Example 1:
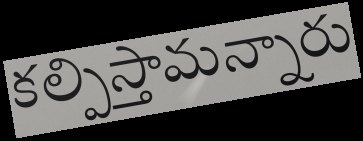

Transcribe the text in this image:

కల్పిస్తామన్నారు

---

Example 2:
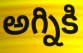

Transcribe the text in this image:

అగ్నికి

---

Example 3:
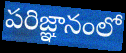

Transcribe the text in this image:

పరిజ్ఞానంలో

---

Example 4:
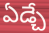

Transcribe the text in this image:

ఏడ్చే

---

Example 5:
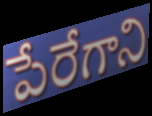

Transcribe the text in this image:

పేరేగాని